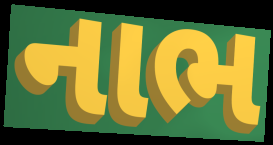
નાભ